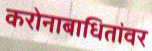
करोनाबाधितांवर